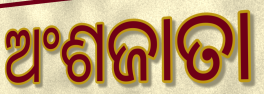
ଅଂଶଜାତା